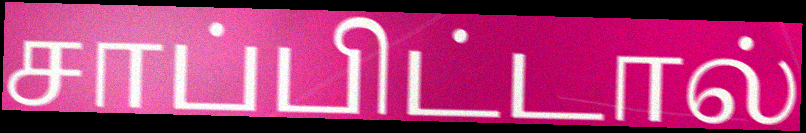
சாப்பிட்டால்